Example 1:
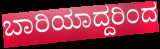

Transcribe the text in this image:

ಬಾರಿಯಾದ್ದರಿಂದ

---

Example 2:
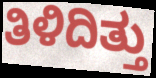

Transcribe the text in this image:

ತಿಳಿದಿತ್ತು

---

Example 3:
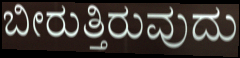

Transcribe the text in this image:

ಬೀರುತ್ತಿರುವುದು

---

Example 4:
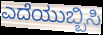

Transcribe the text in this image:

ಎದೆಯುಬ್ಬಿಸಿ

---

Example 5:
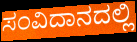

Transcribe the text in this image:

ಸಂವಿದಾನದಲ್ಲಿ